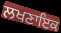
ਲਖਣਾਇਕ